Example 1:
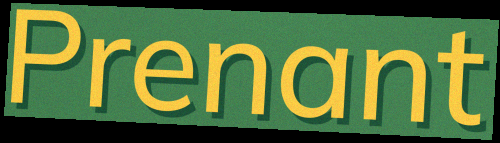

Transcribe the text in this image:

Prenant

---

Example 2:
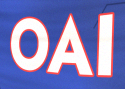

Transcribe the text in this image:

OAI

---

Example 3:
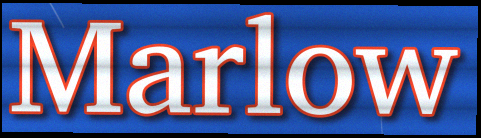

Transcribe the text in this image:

Marlow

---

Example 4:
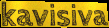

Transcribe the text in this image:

kavisiva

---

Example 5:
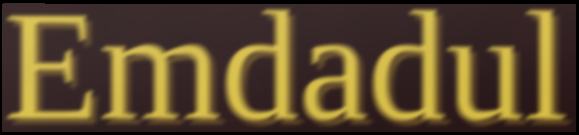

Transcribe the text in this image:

Emdadul